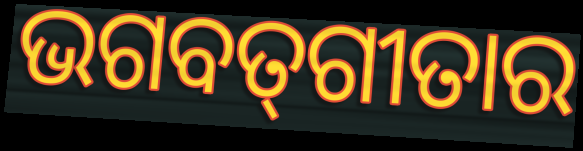
ଭଗବତ୍‍ଗୀତାର